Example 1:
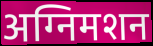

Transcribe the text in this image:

अग्निमशन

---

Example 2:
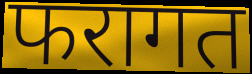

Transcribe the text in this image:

फरागत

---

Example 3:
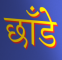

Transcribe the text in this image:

छाँडे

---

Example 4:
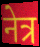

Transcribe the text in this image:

नेत्र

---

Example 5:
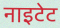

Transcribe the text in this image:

नाइटेट